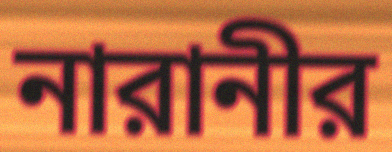
নারানীর